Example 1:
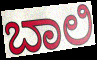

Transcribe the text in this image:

ಬಾಲಿ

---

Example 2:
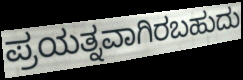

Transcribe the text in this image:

ಪ್ರಯತ್ನವಾಗಿರಬಹುದು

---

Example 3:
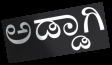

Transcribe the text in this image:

ಅಡ್ಡಾಗಿ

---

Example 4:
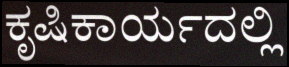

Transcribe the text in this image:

ಕೃಷಿಕಾರ್ಯದಲ್ಲಿ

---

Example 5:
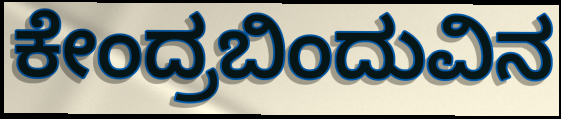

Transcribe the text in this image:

ಕೇಂದ್ರಬಿಂದುವಿನ